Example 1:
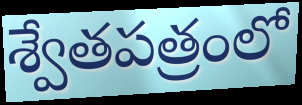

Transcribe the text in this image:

శ్వేతపత్రంలో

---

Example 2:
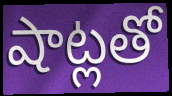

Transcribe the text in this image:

షాట్లతో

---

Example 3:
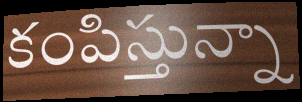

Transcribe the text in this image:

కంపిస్తున్నా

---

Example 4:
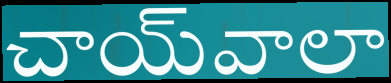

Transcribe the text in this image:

చాయ్‌వాలా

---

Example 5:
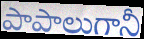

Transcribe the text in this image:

పాపాలుగానీ